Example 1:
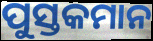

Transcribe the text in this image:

ପୁସ୍ତକମାନ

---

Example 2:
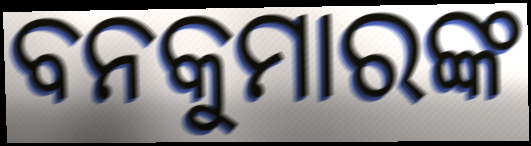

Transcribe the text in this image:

ବନକୁମାରଙ୍କ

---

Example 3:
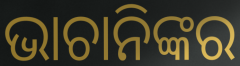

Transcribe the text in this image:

ଭାଚାନିଙ୍କର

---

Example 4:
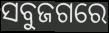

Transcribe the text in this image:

ସବୁଜଗରେ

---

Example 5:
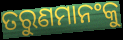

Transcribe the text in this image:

ତରୁଣମାନଂକୁ